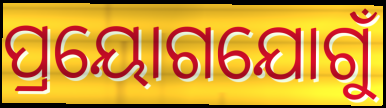
ପ୍ରୟୋଗଯୋଗୁଁ